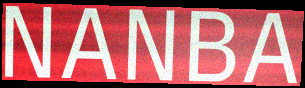
NANBA